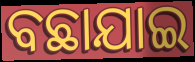
ବଛାଯାଇ